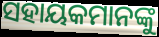
ସହାୟକମାନଙ୍କୁ